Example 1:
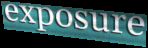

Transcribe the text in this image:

exposure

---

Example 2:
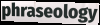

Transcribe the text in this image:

phraseology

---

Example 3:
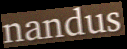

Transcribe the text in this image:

nandus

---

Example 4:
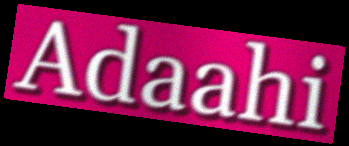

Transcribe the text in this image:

Adaahi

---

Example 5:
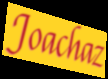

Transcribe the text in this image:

Joachaz